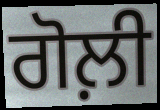
ਗੋਲ਼ੀ